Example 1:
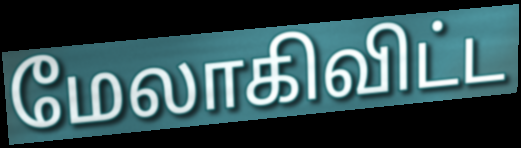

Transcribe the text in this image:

மேலாகிவிட்ட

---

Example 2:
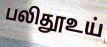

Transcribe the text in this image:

பலிதூஉய்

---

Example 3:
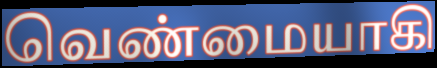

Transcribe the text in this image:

வெண்மையாகி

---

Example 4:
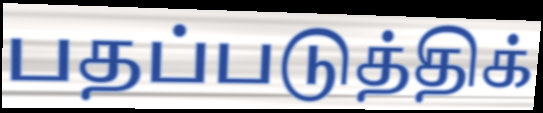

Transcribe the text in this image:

பதப்படுத்திக்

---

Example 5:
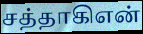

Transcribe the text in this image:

சத்தாகிஎன்